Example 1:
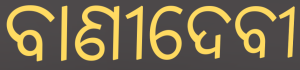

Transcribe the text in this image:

ବାଣୀଦେବୀ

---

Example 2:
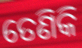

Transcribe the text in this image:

ତେଣିକି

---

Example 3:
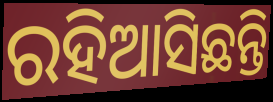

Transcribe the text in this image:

ରହିଆସିଛନ୍ତି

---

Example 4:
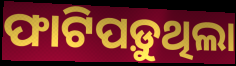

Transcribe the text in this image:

ଫାଟିପଡ଼ୁଥିଲା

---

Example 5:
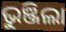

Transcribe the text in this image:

ଭୁଞ୍ଜିଲା